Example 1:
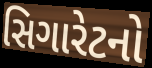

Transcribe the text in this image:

સિગારેટનો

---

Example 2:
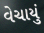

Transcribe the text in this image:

વેચાયું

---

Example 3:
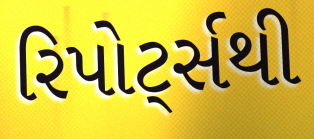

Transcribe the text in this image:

રિપોર્ટ્સથી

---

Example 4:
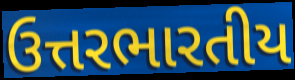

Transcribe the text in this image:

ઉત્તરભારતીય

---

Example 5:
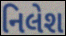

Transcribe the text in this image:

નિલેશ